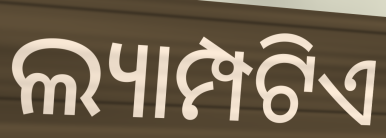
ଲ୍ୟାମ୍ପଟିଏ